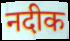
नदीक